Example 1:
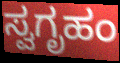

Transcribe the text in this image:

ಸ್ವಗೃಹಂ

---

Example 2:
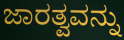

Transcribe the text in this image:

ಜಾರತ್ವವನ್ನು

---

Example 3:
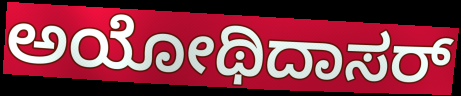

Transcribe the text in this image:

ಅಯೋಥಿದಾಸರ್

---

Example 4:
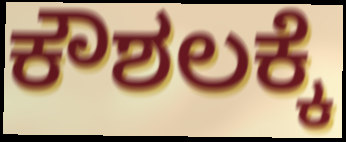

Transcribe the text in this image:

ಕೌಶಲಕ್ಕೆ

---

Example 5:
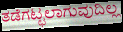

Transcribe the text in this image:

ತಡೆಗಟ್ಟಲಾಗುವುದಿಲ್ಲ